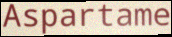
Aspartame